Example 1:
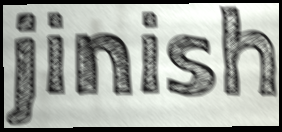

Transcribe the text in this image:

jinish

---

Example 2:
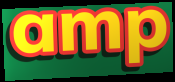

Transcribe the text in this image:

amp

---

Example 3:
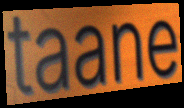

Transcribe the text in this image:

taane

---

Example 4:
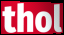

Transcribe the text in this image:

thol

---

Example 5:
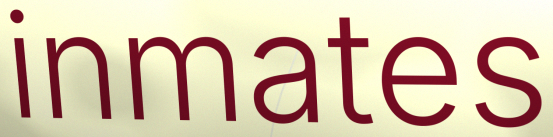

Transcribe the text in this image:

inmates